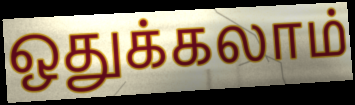
ஒதுக்கலாம்